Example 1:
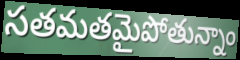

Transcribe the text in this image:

సతమతమైపోతున్నాం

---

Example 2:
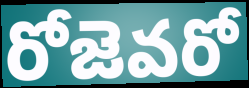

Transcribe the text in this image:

రోజెవరో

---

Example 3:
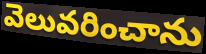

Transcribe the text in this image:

వెలువరించాను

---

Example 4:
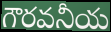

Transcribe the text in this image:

గౌరవనీయ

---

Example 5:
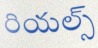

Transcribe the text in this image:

రియల్స్